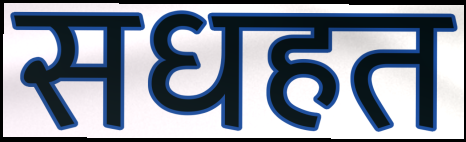
सधहत